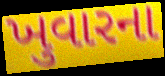
ખુવારના